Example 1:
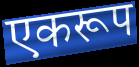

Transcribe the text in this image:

एकरूप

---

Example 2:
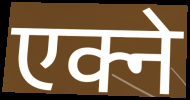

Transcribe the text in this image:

एक्ने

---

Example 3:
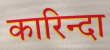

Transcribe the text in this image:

कारिन्दा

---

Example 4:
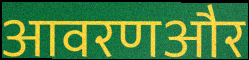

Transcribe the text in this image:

आवरणऔर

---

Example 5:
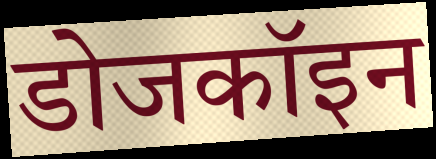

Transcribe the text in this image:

डोजकॉइन